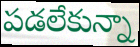
పడలేకున్నా